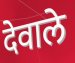
देवाले